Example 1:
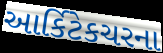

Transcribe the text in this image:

આર્કિટેકચરના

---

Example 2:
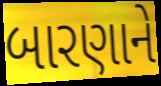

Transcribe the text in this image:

બારણાને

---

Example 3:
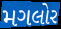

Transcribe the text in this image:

મગલોર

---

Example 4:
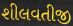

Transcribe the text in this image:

શીલવતીજી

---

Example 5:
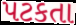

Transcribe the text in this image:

પટકતા